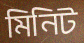
মিনিট